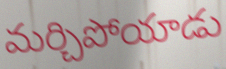
మర్చిపోయాడు